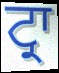
ਟ੍ਰਾ